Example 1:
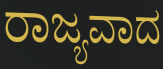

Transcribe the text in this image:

ರಾಜ್ಯವಾದ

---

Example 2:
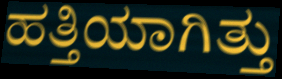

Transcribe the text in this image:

ಹತ್ತಿಯಾಗಿತ್ತು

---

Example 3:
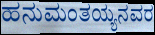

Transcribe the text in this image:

ಹನುಮಂತಯ್ಯನವರ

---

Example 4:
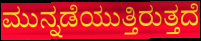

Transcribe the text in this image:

ಮುನ್ನಡೆಯುತ್ತಿರುತ್ತದೆ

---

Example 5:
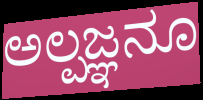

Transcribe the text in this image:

ಅಲ್ಪಜ್ಞನೂ